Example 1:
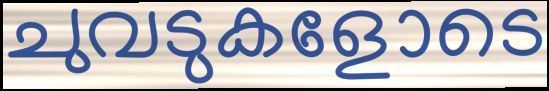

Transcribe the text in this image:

ചുവടുകളോടെ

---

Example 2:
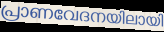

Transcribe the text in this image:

പ്രാണവേദനയിലായി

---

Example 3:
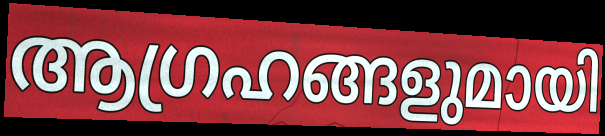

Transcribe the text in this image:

ആഗ്രഹങ്ങളുമായി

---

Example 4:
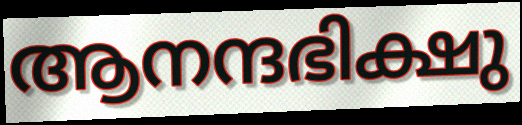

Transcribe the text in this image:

ആനന്ദഭിക്ഷു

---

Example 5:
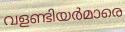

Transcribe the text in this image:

വളണ്ടിയർമാരെ